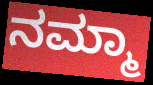
ನಮ್ಮಾ